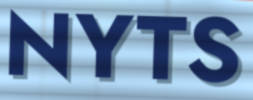
NYTS